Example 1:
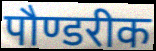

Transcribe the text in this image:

पौण्डरीक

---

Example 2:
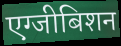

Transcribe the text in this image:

एग्जीबिशन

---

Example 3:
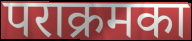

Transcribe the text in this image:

पराक्रमका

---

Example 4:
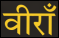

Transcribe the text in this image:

वीराँ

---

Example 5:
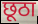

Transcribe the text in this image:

छूठा